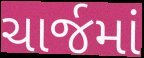
ચાર્જમાં